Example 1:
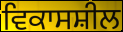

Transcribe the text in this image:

ਵਿਕਾਸਸ਼ੀਲ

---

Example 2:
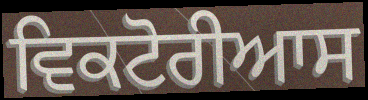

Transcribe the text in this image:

ਵਿਕਟੋਰੀਆਸ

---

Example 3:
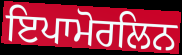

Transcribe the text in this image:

ਇਪਾਮੋਰਲਿਨ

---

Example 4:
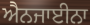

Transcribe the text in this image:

ਐਨਜਾਈਨਾ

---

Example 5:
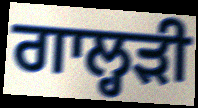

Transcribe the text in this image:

ਗਾਲ੍ਹੜੀ